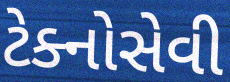
ટેક્નોસેવી